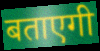
बताएगी